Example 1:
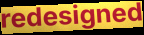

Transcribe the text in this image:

redesigned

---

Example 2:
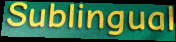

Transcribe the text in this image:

Sublingual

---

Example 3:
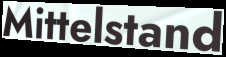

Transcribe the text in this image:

Mittelstand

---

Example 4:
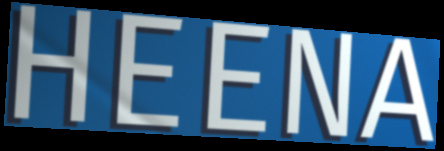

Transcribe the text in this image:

HEENA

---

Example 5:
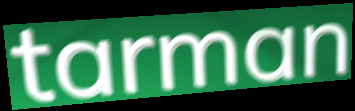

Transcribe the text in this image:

tarman